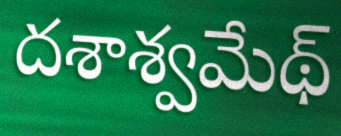
దశాశ్వమేథ్